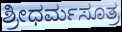
ಶ್ರೀಧರ್ಮಸೂತ್ರ